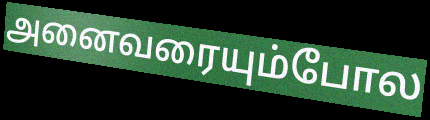
அனைவரையும்போல